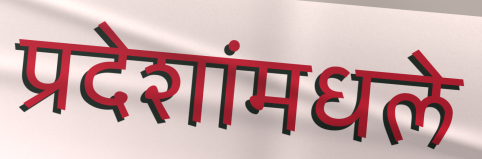
प्रदेशांमधले